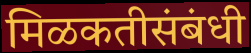
मिळकतीसंबंधी